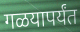
गळयापर्यंत